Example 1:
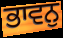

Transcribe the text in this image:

ਭਾਵਨੁ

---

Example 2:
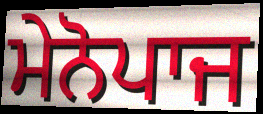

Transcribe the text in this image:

ਮੇਨੋਪਾਜ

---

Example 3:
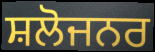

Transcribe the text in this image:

ਸ਼ਲੋਜਨਰ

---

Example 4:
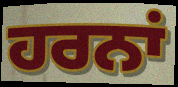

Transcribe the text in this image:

ਹਰਨਾਂ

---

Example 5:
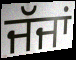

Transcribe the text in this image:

ਜੱਜਾਂ